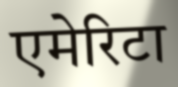
एमेरिटा